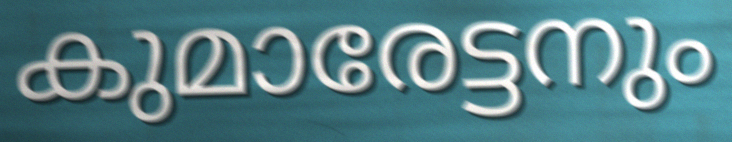
കുമാരേട്ടനും